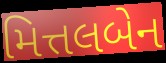
મિત્તલબેન